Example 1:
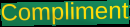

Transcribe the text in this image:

Compliment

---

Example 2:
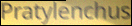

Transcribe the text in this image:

Pratylenchus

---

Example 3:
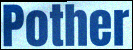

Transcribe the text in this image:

Pother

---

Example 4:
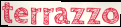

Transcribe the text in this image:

terrazzo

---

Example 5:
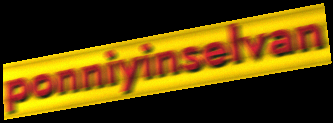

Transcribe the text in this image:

ponniyinselvan